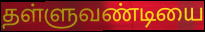
தள்ளுவண்டியை